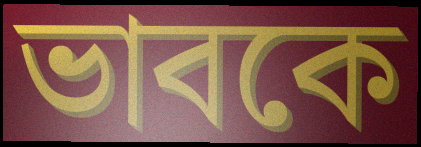
ভাবকে